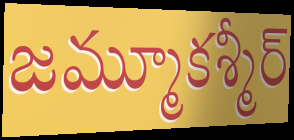
జమ్మూకశ్మీర్